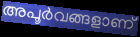
അപൂർവങ്ങളാണ്